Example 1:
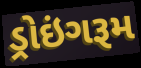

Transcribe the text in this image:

ડ્રોઇંગરૂમ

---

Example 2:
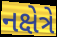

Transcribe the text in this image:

નક્ષેત્રે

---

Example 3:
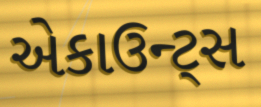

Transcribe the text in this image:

એકાઉન્ટ્સ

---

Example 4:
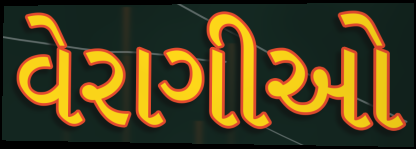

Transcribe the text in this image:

વેરાગીઓ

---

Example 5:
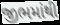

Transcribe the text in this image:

જીભમાંથી